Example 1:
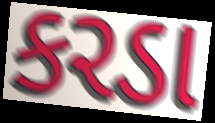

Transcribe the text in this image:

કરડા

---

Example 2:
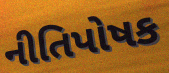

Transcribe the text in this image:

નીતિપોષક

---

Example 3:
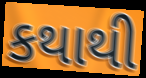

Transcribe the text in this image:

કથાથી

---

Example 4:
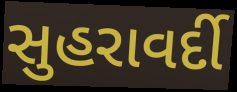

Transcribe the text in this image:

સુહરાવર્દી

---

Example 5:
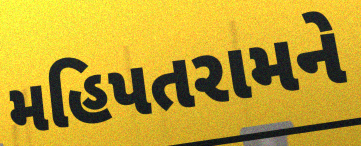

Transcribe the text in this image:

મહિપતરામને